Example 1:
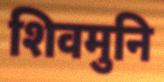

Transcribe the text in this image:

शिवमुनि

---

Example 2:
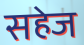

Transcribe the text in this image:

सहेज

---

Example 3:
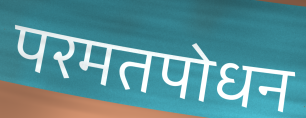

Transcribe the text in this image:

परमतपोधन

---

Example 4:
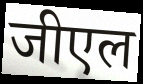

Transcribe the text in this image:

जीएल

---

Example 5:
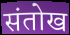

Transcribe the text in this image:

संतोख